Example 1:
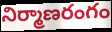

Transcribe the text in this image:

నిర్మాణరంగం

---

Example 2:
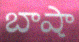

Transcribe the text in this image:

బాషా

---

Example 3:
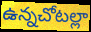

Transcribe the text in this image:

ఉన్నచోటల్లా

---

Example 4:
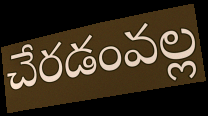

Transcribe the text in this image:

చేరడంవల్ల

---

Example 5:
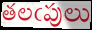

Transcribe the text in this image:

తలఁపులు